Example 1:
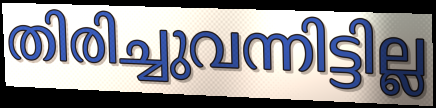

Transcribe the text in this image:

തിരിച്ചുവന്നിട്ടില്ല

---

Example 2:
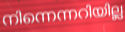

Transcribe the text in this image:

നിന്നെന്നറിയില്ല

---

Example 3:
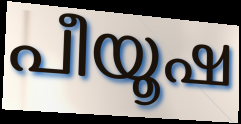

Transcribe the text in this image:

പീയൂഷ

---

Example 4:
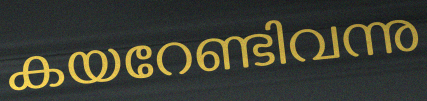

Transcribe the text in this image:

കയറേണ്ടിവന്നു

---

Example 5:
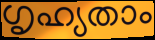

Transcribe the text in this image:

ഗൃഹ്യതാം